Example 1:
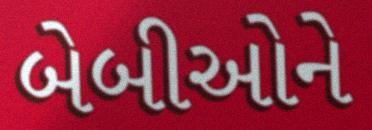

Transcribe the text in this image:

બેબીઓને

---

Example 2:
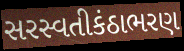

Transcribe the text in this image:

સરસ્વતીકંઠાભરણ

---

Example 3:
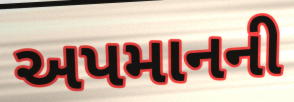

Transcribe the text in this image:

અપમાનની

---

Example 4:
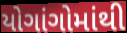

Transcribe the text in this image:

યોગાંગોમાંથી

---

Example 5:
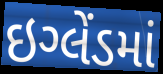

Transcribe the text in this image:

ઇગ્લેંડમાં